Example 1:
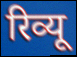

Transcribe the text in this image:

रिव्‍यू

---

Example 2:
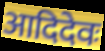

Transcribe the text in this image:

आदिदेवः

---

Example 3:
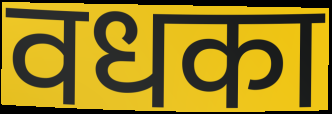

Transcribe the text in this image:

वधका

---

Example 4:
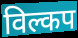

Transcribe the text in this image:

विल्कप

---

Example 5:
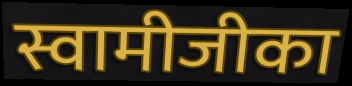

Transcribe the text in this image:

स्वामीजीका